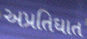
અપ્રતિઘાત